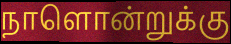
நாளொன்றுக்கு